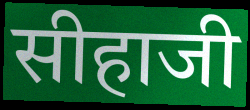
सीहाजी